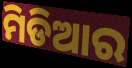
ମିଡିଆର